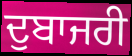
ਦੁਬਾਜਰੀ